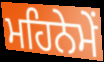
ਮਹਿਨੇਮੇਂ